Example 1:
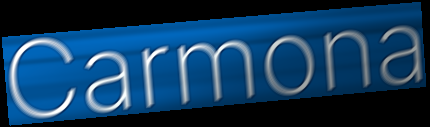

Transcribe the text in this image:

Carmona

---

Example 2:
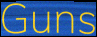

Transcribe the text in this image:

Guns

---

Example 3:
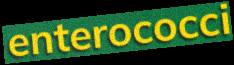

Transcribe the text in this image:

enterococci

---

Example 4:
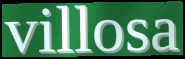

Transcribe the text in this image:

villosa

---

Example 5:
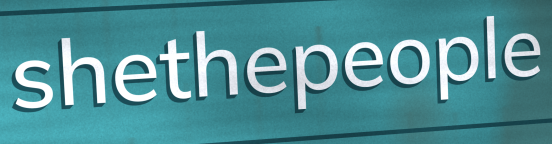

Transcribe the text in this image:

shethepeople